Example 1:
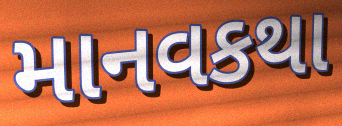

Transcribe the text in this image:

માનવકથા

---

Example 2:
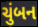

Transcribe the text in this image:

ચુંબન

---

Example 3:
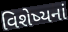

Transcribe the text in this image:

વિશેષ્યનાં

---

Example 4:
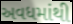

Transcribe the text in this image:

અવધમાંથી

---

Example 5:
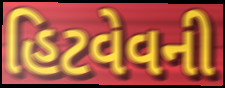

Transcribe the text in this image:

હિટવેવની